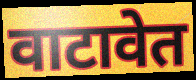
वाटावेत